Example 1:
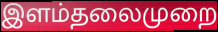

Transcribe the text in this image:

இளம்தலைமுறை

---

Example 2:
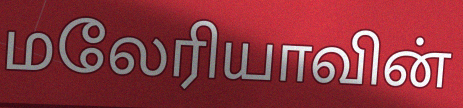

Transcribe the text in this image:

மலேரியாவின்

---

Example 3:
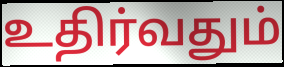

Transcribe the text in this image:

உதிர்வதும்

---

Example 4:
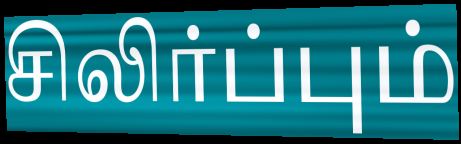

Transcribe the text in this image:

சிலிர்ப்பும்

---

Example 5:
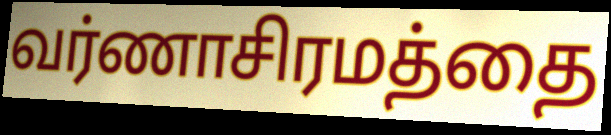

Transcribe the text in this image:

வர்ணாசிரமத்தை